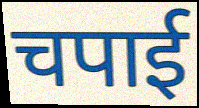
चपाई